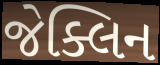
જેક્લિન